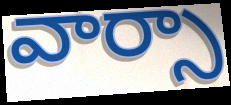
వార్సా